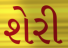
શેરી